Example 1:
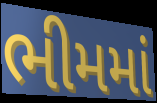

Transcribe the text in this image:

ભીમમાં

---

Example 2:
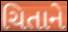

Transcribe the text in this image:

ચિતાને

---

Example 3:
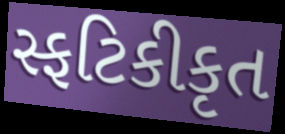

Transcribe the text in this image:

સ્ફટિકીકૃત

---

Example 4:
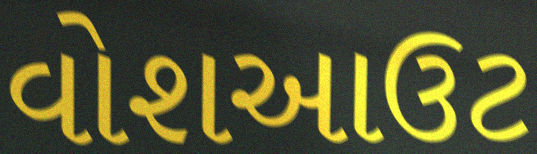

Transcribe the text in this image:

વોશઆઉટ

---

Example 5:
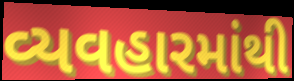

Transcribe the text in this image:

વ્યવહારમાંથી